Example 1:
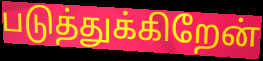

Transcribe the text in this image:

படுத்துக்கிறேன்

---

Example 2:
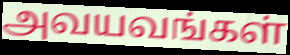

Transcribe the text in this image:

அவயவங்கள்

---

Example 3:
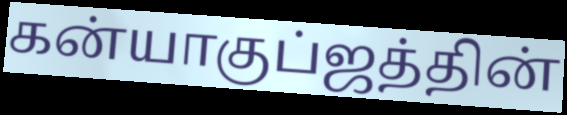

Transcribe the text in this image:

கன்யாகுப்ஜத்தின்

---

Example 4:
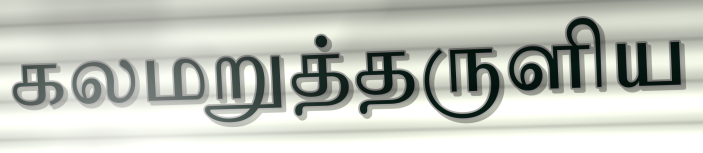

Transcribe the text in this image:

கலமறுத்தருளிய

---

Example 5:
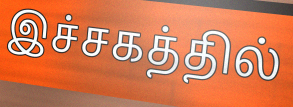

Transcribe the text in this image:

இச்சகத்தில்